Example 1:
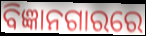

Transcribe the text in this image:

ବିଜ୍ଞାନଗାରରେ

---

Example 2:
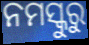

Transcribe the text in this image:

ନମସ୍କୁରୁ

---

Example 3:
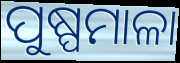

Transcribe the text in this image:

ପୁଷ୍ପମାଳା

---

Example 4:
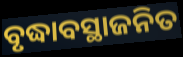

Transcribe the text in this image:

ବୃଦ୍ଧାବସ୍ଥାଜନିତ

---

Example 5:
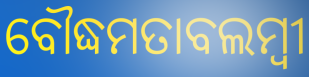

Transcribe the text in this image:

ବୌଦ୍ଧମତାବଲମ୍ବୀ